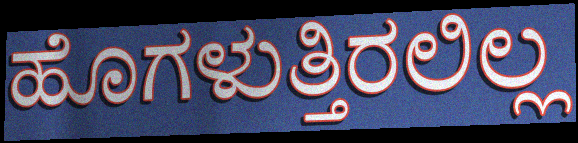
ಹೊಗಳುತ್ತಿರಲಿಲ್ಲ